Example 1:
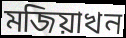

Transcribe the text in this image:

মজিয়াখন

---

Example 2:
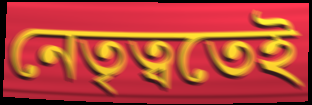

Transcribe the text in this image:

নেতৃত্বতেই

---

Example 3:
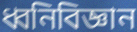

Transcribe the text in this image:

ধ্বনিবিজ্ঞান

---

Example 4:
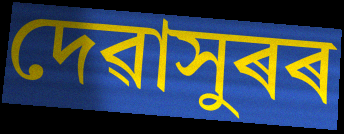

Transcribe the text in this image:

দেৱাসুৰৰ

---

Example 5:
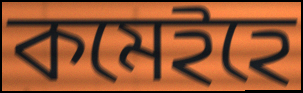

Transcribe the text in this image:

কমেইহে